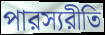
পারস্যরীতি